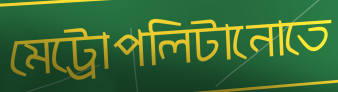
মেট্রোপলিটানোতে